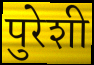
पुरेशी